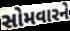
સોમવારને